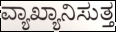
ವ್ಯಾಖ್ಯಾನಿಸುತ್ತ